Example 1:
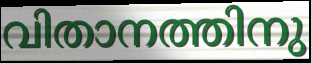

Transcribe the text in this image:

വിതാനത്തിനു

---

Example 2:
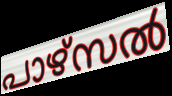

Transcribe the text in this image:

പാഴ്സൽ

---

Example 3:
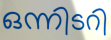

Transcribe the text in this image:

ഒന്നിടറി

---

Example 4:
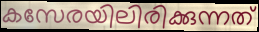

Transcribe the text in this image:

കസേരയിലിരിക്കുന്നത്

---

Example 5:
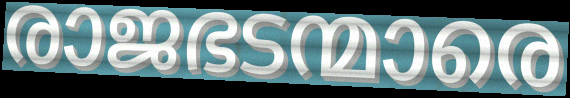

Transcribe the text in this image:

രാജഭടന്മാരെ